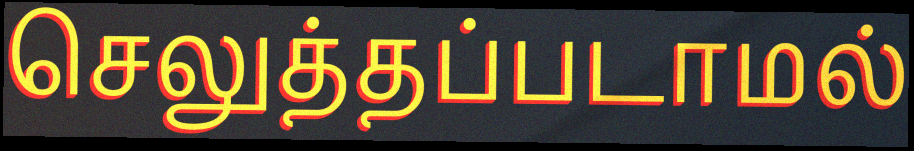
செலுத்தப்படாமல்